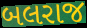
બલરાજ